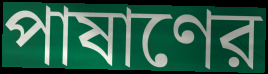
পাষাণের